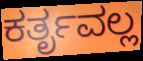
ಕರ್ತೃವಲ್ಲ